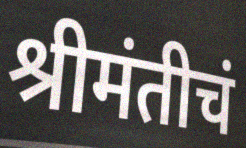
श्रीमंतीचं